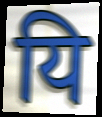
यि